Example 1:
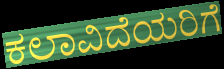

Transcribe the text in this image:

ಕಲಾವಿದೆಯರಿಗೆ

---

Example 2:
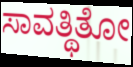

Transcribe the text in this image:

ಸಾವತ್ಥಿತೋ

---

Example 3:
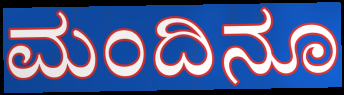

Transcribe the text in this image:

ಮಂದಿನೂ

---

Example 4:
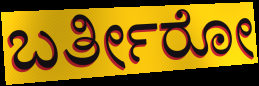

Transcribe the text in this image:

ಬರ್ತೀರೋ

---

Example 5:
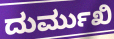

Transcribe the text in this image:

ದುರ್ಮುಖಿ